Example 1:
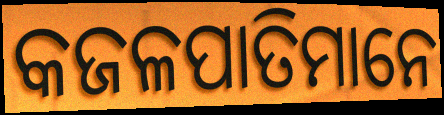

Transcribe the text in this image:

କଜଳପାତିମାନେ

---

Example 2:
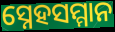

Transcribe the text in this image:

ସ୍ନେହସମ୍ମାନ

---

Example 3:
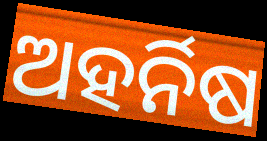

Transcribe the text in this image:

ଅହର୍ନିଷ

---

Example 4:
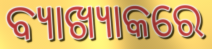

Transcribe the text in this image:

ବ୍ୟାଖ୍ୟାକରେ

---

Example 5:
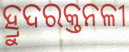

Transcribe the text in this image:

ହ୍ରୁଦରକ୍ତନଳୀ